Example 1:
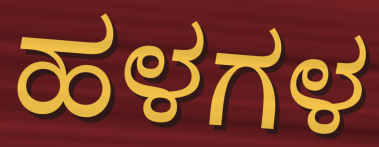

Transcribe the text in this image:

ಹಳಗಳ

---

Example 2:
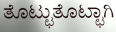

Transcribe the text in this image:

ತೊಟ್ಟುತೊಟ್ಟಾಗಿ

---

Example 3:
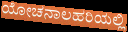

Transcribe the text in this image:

ಯೋಚನಾಲಹರಿಯಲ್ಲಿ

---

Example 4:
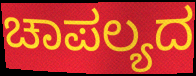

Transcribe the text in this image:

ಚಾಪಲ್ಯದ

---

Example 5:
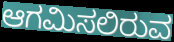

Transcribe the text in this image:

ಆಗಮಿಸಲಿರುವ